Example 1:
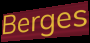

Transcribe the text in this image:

Berges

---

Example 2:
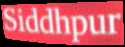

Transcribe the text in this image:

Siddhpur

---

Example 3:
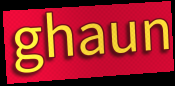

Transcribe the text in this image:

ghaun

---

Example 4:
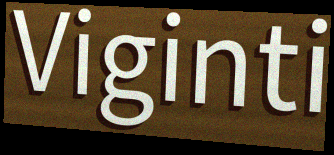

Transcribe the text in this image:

Viginti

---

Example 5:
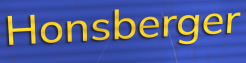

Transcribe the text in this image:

Honsberger